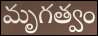
మృగత్వం